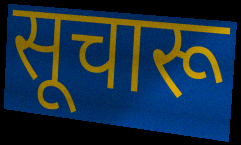
सूचारू